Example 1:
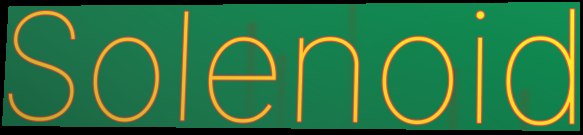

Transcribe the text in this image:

Solenoid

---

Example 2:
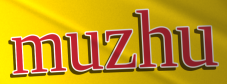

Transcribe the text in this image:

muzhu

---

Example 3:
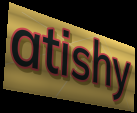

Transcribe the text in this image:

atishy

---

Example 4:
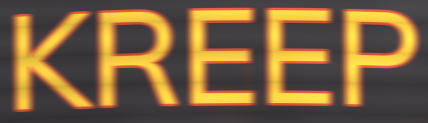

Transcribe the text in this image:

KREEP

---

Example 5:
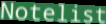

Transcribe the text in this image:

Notelist